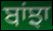
ਬਾਂਝਾ